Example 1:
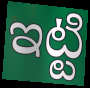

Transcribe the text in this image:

ఇట్టి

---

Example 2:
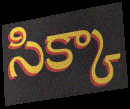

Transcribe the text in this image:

సిక్కా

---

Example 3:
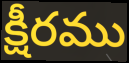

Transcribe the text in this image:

క్షీరము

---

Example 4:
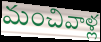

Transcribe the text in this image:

మంచివాళ్ల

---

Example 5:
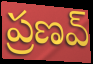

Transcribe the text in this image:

ప్రణవ్